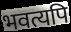
भवत्यपि